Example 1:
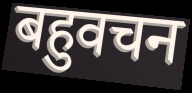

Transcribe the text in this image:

बहुवचन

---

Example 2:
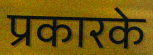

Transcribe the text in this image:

प्रकारके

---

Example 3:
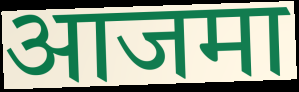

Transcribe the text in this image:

आजमा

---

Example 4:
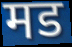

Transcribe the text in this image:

मड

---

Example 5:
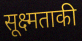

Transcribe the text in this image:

सूक्ष्मताकी